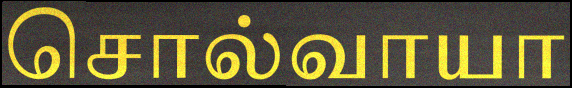
சொல்வாயா